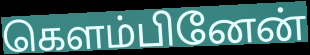
கெளம்பினேன்